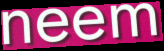
neem